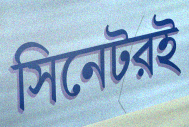
সিনেটরই